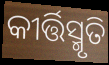
କୀର୍ତ୍ତିସ୍ମୃତି